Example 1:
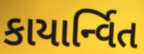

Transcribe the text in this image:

કાયાર્ન્વિત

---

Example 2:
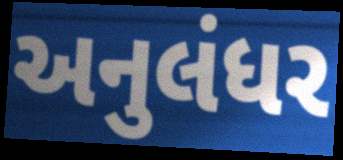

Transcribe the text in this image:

અનુલંધર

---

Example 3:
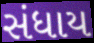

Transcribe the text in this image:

સંધાય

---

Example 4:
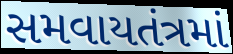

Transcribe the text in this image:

સમવાયતંત્રમાં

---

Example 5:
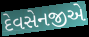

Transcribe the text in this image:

દેવસેનજીએ